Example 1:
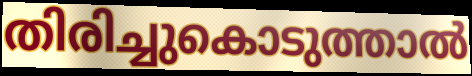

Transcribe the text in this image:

തിരിച്ചുകൊടുത്താൽ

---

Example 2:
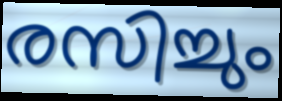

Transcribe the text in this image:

രസിച്ചും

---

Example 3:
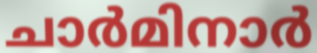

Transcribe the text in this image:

ചാർമിനാർ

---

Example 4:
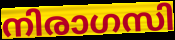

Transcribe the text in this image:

നിരാഗസി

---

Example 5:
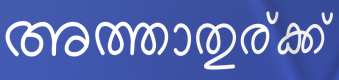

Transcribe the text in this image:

അത്താതുര്ക്ക്